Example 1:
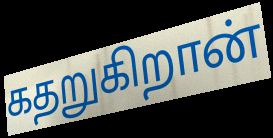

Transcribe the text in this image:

கதறுகிறான்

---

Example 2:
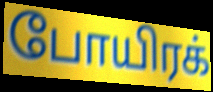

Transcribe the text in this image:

போயிரக்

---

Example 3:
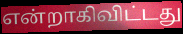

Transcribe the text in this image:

என்றாகிவிட்டது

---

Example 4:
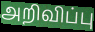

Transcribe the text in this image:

அறிவிப்பு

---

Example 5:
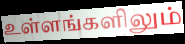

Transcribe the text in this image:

உள்ளங்களிலும்